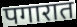
पगारात